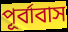
পূর্বাবাস